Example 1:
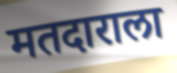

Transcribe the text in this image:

मतदाराला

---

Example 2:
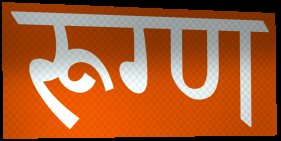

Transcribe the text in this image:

रूग्ण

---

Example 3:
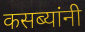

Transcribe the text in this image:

कसब्यांनी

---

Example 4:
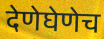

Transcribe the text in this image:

देणेघेणेच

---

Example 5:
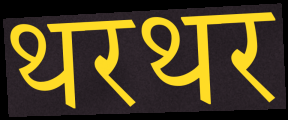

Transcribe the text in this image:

थरथर